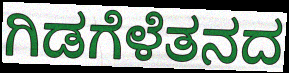
ಗಿಡಗೆಳೆತನದ